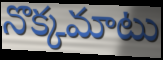
నొక్కమాటు